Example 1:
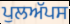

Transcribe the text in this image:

ਪੁਲਅੱਪਸ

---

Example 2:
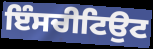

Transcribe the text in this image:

ਇੰਸਚੀਟਿਉਟ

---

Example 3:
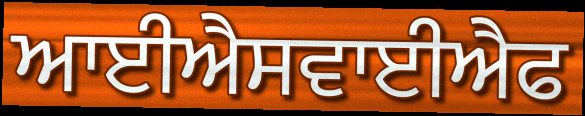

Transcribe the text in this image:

ਆਈਐਸਵਾਈਐਫ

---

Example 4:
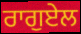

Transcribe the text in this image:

ਰਾਗੁਏਲ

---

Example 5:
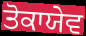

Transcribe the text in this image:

ਤੋਕਾਯੇਵ